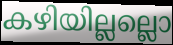
കഴിയില്ലല്ലൊ